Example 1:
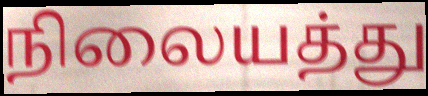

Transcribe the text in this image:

நிலையத்து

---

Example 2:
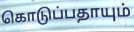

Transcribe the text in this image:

கொடுப்பதாயும்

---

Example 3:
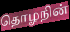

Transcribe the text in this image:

தொழநின்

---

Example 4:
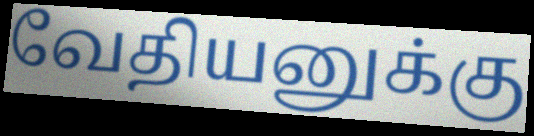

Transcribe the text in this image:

வேதியனுக்கு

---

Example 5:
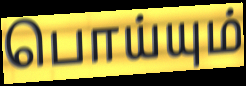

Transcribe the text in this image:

பொய்யும்